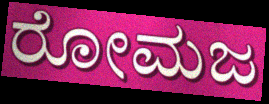
ರೋಮಜ